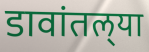
डावांतल्या